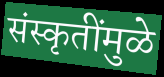
संस्कृतींमुळे